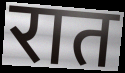
रात